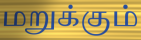
மறுக்கும்